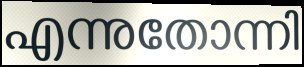
എന്നുതോന്നി